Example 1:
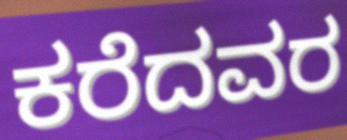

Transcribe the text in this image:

ಕರೆದವರ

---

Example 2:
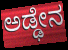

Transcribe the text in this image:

ಅಡ್ಢೇನ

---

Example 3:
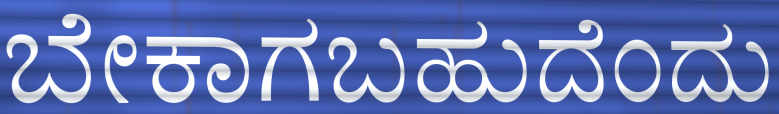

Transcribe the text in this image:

ಬೇಕಾಗಬಹುದೆಂದು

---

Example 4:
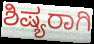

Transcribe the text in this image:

ಶಿಷ್ಯರಾಗಿ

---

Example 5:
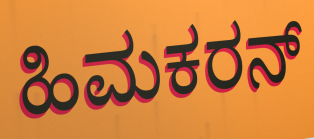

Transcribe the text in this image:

ಹಿಮಕರನ್